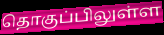
தொகுப்பிலுள்ள